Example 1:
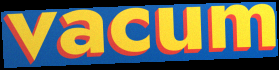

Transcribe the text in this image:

vacum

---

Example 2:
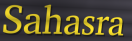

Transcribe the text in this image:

Sahasra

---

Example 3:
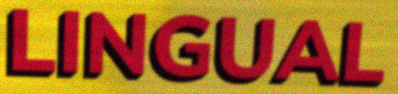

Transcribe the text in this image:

LINGUAL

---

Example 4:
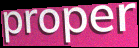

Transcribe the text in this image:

proper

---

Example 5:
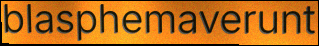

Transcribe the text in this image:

blasphemaverunt